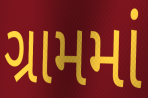
ગ્રામમાં